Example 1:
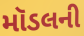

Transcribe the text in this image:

મૉડલની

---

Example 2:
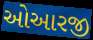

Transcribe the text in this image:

ઓઆરજી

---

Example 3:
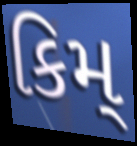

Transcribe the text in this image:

કિમ્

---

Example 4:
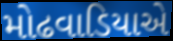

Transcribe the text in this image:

મોઢવાડિયાએ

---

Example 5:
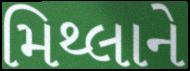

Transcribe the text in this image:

મિથ્લાને